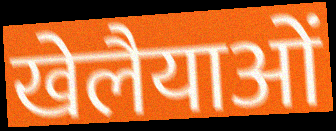
खेलैयाओं